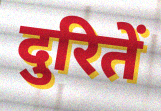
दुरितें